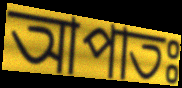
আপাতঃ